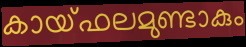
കായ്ഫലമുണ്ടാകും